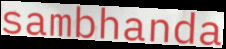
sambhanda